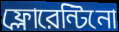
ফ্লোরেন্টিনো